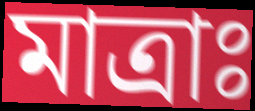
মাত্রাঃ